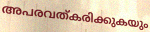
അപരവത്കരിക്കുകയും